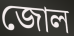
জোল